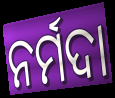
ନର୍ମଦା